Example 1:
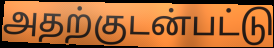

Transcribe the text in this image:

அதற்குடன்பட்டு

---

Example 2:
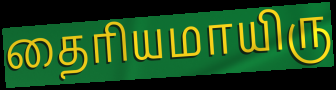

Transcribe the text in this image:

தைரியமாயிரு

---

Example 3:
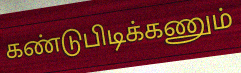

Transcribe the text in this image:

கண்டுபிடிக்கணும்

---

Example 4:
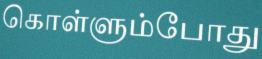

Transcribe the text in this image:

கொள்ளும்போது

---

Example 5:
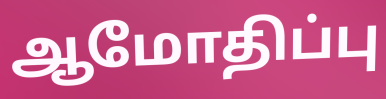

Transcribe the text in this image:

ஆமோதிப்பு